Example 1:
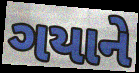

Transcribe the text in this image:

ગયાને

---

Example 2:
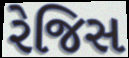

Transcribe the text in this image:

રેજિસ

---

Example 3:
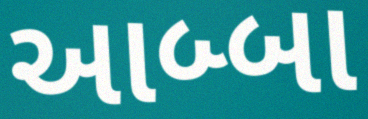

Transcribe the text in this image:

આબ્બા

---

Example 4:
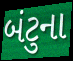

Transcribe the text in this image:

બંટુના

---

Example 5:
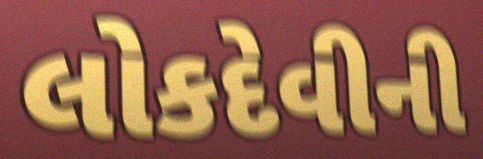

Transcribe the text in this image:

લોકદેવીની